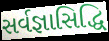
સર્વજ્ઞાસિદ્ધિ